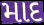
માદ